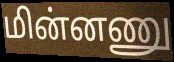
மின்னணு